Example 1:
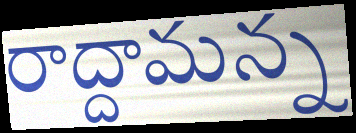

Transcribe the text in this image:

రాద్దామన్న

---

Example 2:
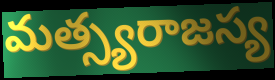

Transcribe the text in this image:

మత్స్యరాజస్య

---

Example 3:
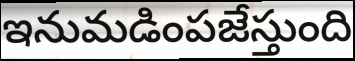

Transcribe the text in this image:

ఇనుమడింపజేస్తుంది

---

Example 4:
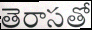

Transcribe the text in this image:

తెరాసతో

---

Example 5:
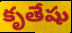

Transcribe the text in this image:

కృతేషు